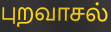
புறவாசல்